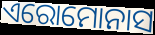
ଏରୋମୋନାସ